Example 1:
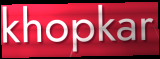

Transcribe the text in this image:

khopkar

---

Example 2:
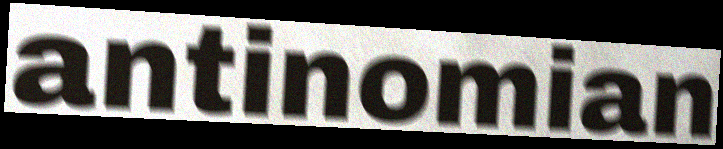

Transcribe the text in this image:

antinomian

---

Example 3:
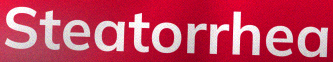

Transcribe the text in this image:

Steatorrhea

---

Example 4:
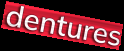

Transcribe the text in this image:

dentures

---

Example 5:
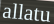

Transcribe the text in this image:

allatu